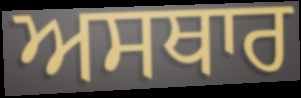
ਅਸਥਾਰ